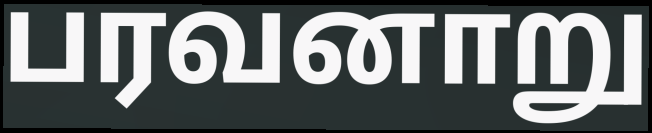
பரவனாறு